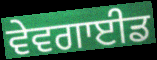
ਵੇਵਗਾਈਡ